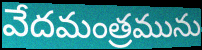
వేదమంత్రమును